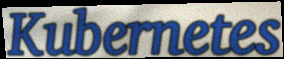
Kubernetes